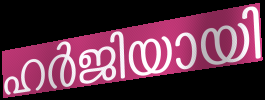
ഹർജിയായി